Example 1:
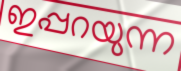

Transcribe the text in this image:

ഇപ്പറയുന്ന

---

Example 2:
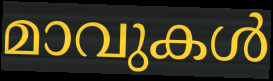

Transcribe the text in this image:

മാവുകൾ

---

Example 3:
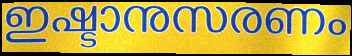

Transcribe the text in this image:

ഇഷ്ടാനുസരണം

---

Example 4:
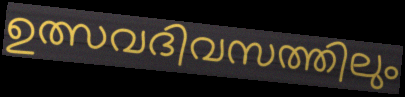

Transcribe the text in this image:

ഉത്സവദിവസത്തിലും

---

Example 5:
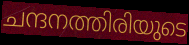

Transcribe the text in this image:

ചന്ദനത്തിരിയുടെ